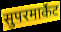
सुपरमार्केट